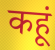
कहूं